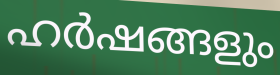
ഹർഷങ്ങളും